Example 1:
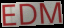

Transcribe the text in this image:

EDM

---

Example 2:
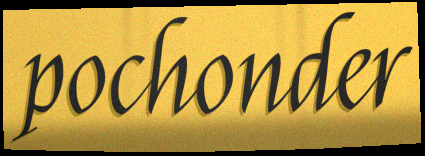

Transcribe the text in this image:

pochonder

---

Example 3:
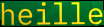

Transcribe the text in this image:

heille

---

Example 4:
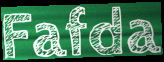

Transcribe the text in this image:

Fafda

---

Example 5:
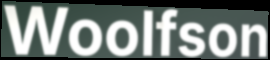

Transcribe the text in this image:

Woolfson